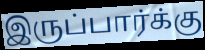
இருப்பார்க்கு